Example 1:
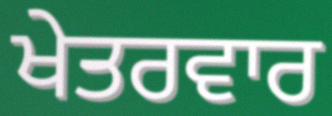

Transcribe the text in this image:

ਖੇਤਰਵਾਰ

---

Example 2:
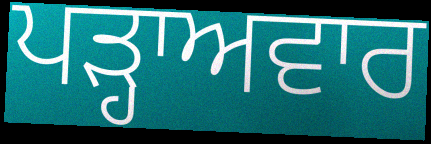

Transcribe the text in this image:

ਪੜ੍ਹਾਅਵਾਰ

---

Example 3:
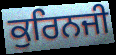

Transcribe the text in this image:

ਕੁਰਿਨਜੀ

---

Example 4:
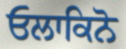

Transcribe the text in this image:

ਓਲਾਕਿਨੋ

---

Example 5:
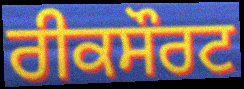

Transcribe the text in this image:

ਰੀਕਸੌਰਟ